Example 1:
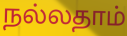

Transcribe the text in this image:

நல்லதாம்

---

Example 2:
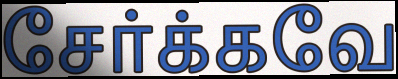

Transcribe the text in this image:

சேர்க்கவே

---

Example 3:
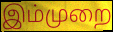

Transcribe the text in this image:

இம்முறை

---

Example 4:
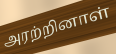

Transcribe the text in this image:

அரற்றினாள்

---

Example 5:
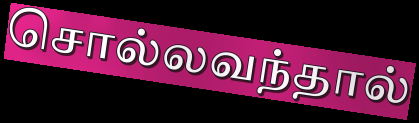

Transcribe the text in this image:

சொல்லவந்தால்